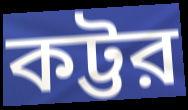
কট্টর